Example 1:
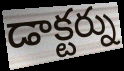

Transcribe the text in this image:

డాక్టర్ను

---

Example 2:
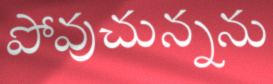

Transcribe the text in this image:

పోవుచున్నను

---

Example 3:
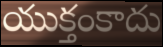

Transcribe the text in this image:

యుక్తంకాదు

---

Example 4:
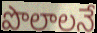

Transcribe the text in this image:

పొలాలనే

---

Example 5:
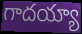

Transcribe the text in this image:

గాదయ్యా